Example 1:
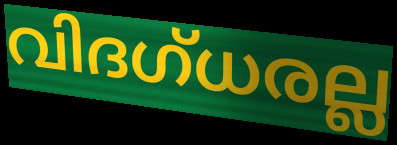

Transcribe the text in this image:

വിദഗ്ധരല്ല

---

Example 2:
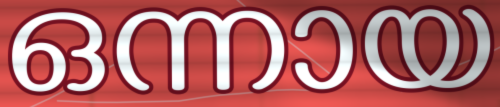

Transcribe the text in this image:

ഒന്നായ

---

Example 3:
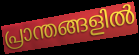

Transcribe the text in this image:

പ്രാന്തങ്ങളിൽ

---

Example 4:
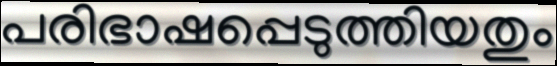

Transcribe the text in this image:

പരിഭാഷപ്പെടുത്തിയതും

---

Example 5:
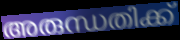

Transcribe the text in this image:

അരുന്ധതിക്ക്